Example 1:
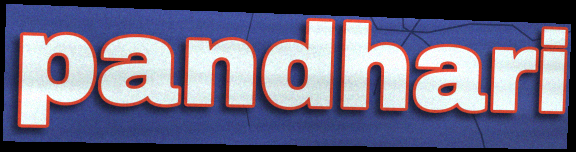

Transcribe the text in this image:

pandhari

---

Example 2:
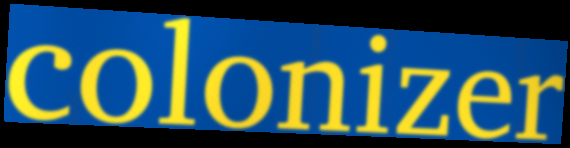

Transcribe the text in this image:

colonizer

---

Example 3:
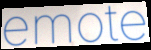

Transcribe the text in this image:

emote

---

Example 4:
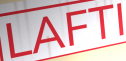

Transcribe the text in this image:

LAFTI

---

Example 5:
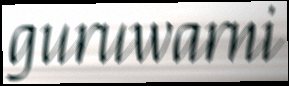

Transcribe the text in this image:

guruwarni